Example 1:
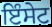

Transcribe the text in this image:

ਇੰਸੇਟ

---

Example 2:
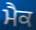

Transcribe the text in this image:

ਮੈਕ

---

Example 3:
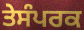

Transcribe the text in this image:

ਤੇਸੰਪਰਕ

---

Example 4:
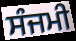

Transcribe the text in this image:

ਸੰਜਮੀ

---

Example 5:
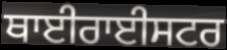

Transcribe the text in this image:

ਥਾਈਰਾਈਸਟਰ